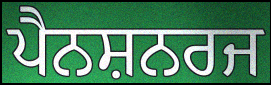
ਪੈਨਸ਼ਨਰਜ